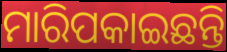
ମାରିପକାଇଛନ୍ତି